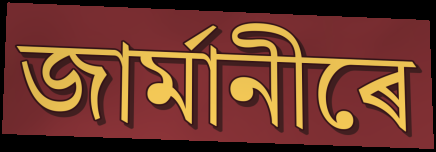
জাৰ্মানীৰে